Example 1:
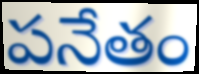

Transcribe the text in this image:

పనేతం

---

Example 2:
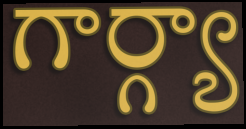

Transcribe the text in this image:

గార్గ్యా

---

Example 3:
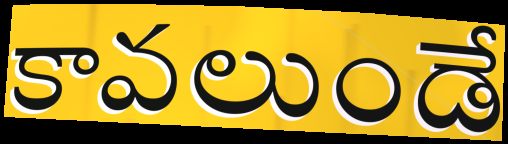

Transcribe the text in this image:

కావలుండే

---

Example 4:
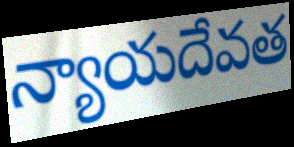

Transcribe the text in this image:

న్యాయదేవత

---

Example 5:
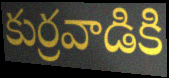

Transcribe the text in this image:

కుర్రవాడికి